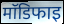
मॉडिफाइ